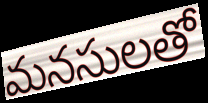
మనసులతో